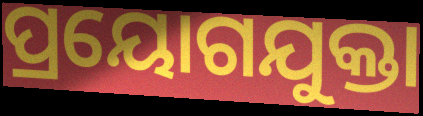
ପ୍ରୟୋଗଯୁକ୍ତା